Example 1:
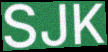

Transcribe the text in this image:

SJK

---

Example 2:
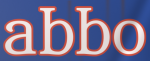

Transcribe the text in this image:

abbo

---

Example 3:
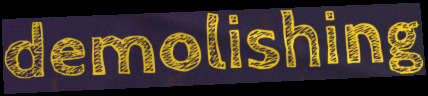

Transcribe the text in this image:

demolishing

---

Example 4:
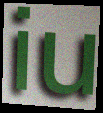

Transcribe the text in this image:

iu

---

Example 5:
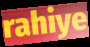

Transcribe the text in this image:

rahiye